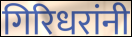
गिरिधरांनी